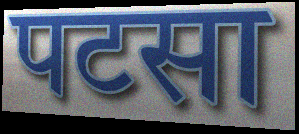
पटसा